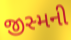
જીસ્મની